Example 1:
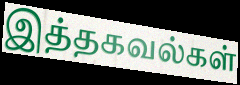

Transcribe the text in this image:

இத்தகவல்கள்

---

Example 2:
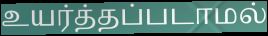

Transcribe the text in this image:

உயர்த்தப்படாமல்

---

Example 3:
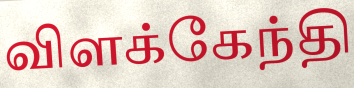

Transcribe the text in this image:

விளக்கேந்தி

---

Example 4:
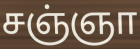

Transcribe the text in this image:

சஞ்ஞா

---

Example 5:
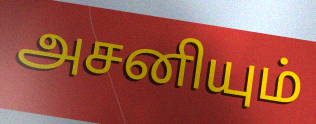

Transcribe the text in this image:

அசனியும்